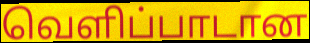
வெளிப்பாடான